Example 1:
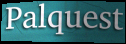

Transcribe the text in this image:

Palquest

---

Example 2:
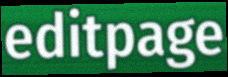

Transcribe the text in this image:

editpage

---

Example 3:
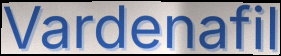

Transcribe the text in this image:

Vardenafil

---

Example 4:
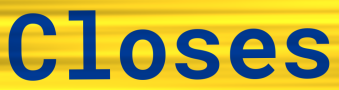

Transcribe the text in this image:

Closes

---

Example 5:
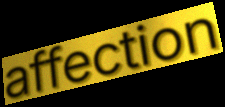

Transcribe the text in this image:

affection